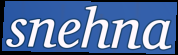
snehna